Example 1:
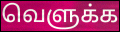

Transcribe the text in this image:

வெளுக்க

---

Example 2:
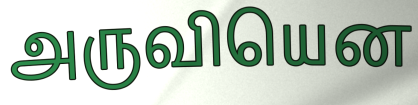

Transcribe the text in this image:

அருவியென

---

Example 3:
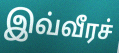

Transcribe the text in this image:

இவ்வீரச்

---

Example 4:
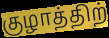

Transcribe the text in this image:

குழாத்திற்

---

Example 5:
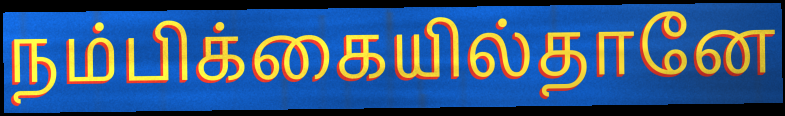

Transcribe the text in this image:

நம்பிக்கையில்தானே